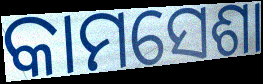
କାମସେଶା